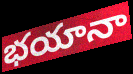
భయానా